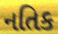
નતિક